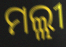
ମଲ୍ଲୀ